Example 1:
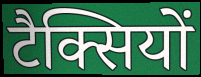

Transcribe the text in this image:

टैक्सियों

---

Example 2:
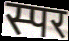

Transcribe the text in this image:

स्पर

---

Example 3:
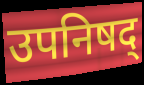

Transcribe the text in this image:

उपनिषद्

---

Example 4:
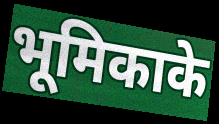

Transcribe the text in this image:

भूमिकाके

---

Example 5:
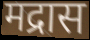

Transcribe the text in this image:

मद्रास